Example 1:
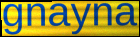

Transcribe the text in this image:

gnayna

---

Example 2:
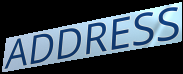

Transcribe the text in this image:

ADDRESS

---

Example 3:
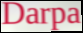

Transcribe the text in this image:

Darpa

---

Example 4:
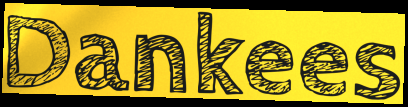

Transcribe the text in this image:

Dankees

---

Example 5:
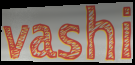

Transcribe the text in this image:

vashi